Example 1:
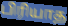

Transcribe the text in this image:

பிரியாத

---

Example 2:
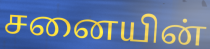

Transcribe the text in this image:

சனையின்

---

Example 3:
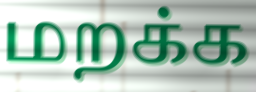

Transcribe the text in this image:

மறக்க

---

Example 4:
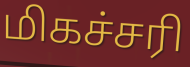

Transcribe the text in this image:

மிகச்சரி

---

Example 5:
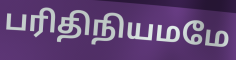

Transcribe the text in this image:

பரிதிநியமமே